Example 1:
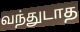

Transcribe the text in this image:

வந்துடாத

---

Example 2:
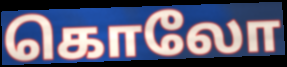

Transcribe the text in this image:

கொலோ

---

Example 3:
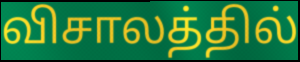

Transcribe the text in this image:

விசாலத்தில்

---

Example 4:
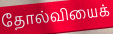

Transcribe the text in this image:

தோல்வியைக்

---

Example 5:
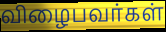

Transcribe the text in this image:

விழைபவர்கள்